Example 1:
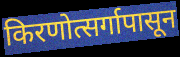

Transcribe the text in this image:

किरणोत्सर्गापासून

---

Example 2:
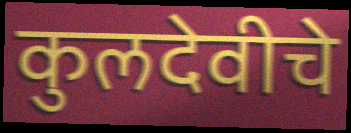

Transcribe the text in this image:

कुलदेवीचे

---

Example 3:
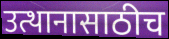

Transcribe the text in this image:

उत्थानासाठीच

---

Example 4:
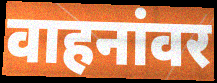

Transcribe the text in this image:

वाहनांवर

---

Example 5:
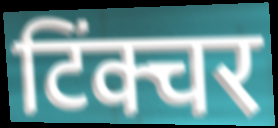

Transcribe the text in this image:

टिंक्चर